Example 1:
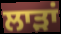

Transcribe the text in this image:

ਲਾੜਾਂ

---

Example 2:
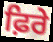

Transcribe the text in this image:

ਫ਼ਿਰੇ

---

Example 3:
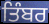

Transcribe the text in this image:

ਤਿੰਬਰ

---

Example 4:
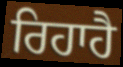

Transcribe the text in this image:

ਰਿਹਾਹੈ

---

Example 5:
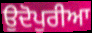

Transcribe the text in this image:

ਉਦੋਪੁਰੀਆ